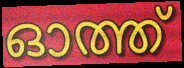
ഓത്ത്